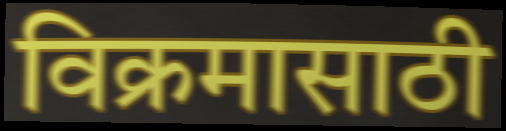
विक्रमासाठी